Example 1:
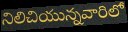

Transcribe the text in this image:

నిలిచియున్నవారిలో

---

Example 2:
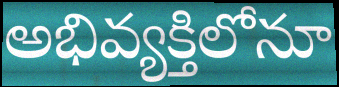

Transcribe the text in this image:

అభివ్యక్తిలోనూ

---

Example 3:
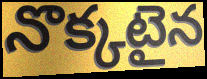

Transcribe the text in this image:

నొక్కటైన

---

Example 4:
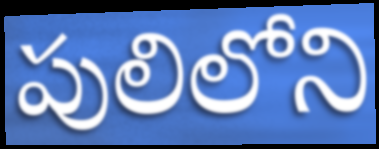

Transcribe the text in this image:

పులిలోని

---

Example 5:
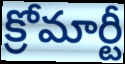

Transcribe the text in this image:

క్రోమార్టీ